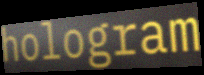
hologram